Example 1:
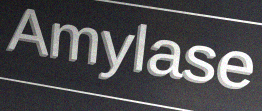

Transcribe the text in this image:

Amylase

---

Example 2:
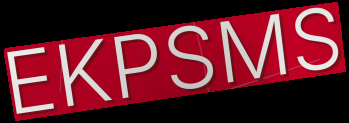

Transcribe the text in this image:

EKPSMS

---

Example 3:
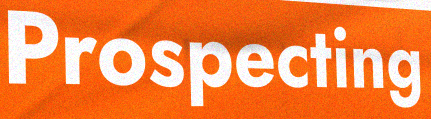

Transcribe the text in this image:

Prospecting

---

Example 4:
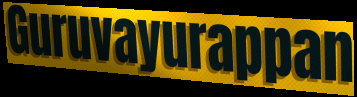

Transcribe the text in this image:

Guruvayurappan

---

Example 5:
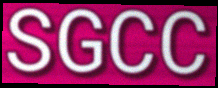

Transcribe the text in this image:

SGCC